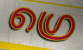
ഗ്രെ